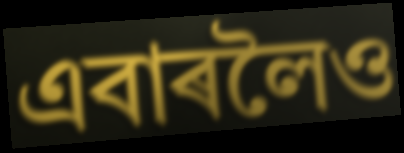
এবাৰলৈও